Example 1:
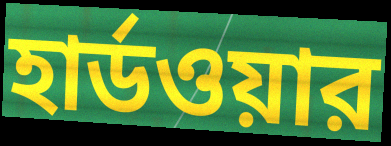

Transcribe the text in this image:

হার্ডওয়ার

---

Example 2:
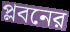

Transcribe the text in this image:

প্লবনের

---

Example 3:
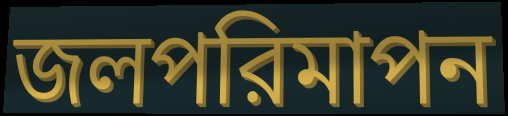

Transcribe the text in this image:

জলপরিমাপন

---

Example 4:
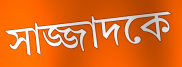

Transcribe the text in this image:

সাজ্জাদকে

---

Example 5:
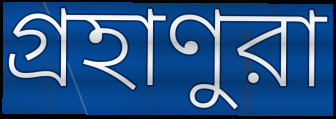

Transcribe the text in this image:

গ্রহাণুরা